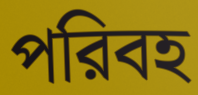
পরিবহ